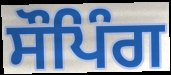
ਸੌਪਿੰਗ